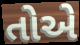
તોએ